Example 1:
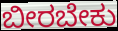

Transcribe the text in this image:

ಬೀರಬೇಕು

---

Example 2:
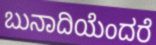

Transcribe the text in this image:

ಬುನಾದಿಯೆಂದರೆ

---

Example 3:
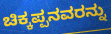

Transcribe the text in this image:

ಚಿಕ್ಕಪ್ಪನವರನ್ನು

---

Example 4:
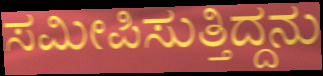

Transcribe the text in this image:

ಸಮೀಪಿಸುತ್ತಿದ್ದನು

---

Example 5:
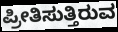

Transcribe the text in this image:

ಪ್ರೀತಿಸುತ್ತಿರುವ